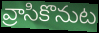
వ్రాసికొనుట